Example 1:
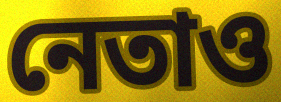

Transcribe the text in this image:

নেতাও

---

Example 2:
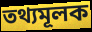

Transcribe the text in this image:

তথ্যমূলক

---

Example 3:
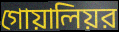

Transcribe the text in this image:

গোয়ালিয়র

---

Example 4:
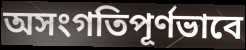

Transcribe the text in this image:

অসংগতিপূর্ণভাবে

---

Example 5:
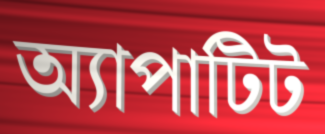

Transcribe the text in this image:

অ্যাপাটিট